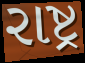
રાષ્ટ્ર